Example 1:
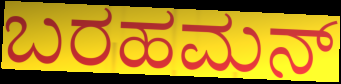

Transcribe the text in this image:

ಬರಹಮನ್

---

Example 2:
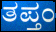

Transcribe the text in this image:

ತಪ್ತಂ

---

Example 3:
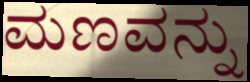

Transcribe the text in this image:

ಮಣವನ್ನು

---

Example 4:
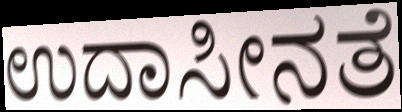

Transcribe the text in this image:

ಉದಾಸೀನತೆ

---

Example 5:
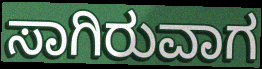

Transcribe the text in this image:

ಸಾಗಿರುವಾಗ